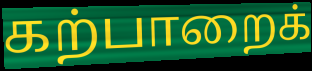
கற்பாறைக்